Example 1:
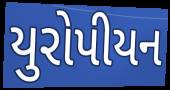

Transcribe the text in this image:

યુરોપીયન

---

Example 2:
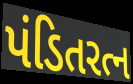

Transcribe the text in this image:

પંડિતરત્ન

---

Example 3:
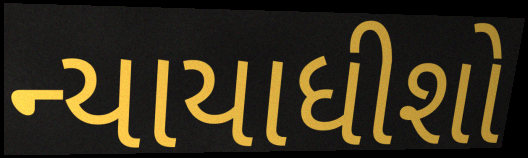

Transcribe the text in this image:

ન્યાયાધીશો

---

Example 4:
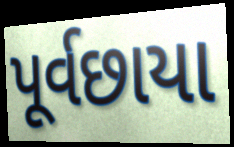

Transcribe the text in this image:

પૂર્વછાયા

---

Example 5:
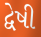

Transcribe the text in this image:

દ્વેષી